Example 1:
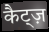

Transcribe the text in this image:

कैट्ज़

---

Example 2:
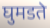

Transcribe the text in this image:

घुमडते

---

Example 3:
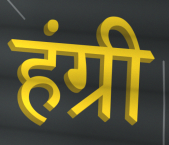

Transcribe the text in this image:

हंग्री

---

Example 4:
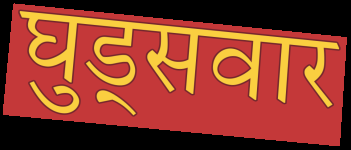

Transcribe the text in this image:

घुड्सवार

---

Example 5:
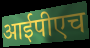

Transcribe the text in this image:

आईपीएच